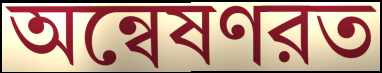
অন্বেষণরত